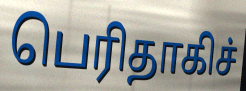
பெரிதாகிச்